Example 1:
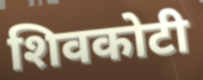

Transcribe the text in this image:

शिवकोटी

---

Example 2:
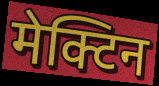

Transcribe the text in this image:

मेक्टिन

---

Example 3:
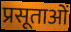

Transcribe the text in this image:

प्रसूताओं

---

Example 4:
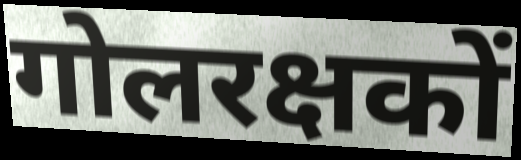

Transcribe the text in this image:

गोलरक्षकों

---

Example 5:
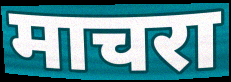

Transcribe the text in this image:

माचरा